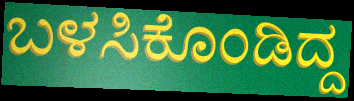
ಬಳಸಿಕೊಂಡಿದ್ದ